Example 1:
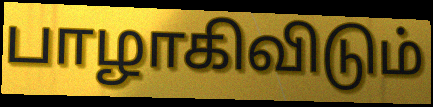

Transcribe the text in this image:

பாழாகிவிடும்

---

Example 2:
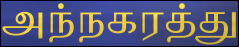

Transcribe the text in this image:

அந்நகரத்து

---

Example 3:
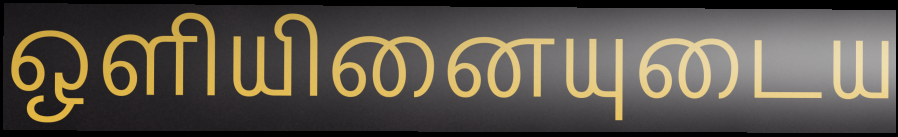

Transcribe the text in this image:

ஒளியினையுடைய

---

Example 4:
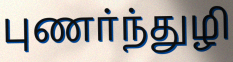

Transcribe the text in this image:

புணர்ந்துழி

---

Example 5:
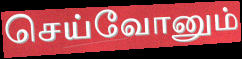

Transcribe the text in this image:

செய்வோனும்